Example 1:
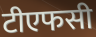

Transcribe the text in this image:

टीएफसी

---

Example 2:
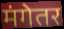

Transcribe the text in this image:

मंगेतर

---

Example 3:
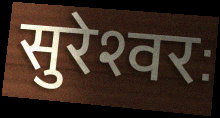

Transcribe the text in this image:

सुरेश्वरः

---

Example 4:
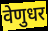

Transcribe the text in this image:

वेणुधर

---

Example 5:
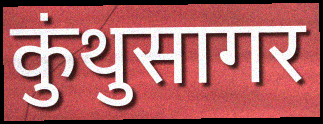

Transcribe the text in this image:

कुंथुसागर